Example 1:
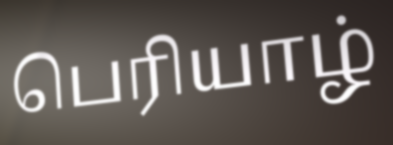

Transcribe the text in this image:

பெரியாழ்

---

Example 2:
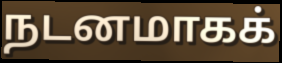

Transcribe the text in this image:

நடனமாகக்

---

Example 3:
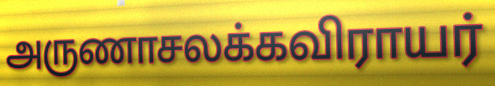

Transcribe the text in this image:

அருணாசலக்கவிராயர்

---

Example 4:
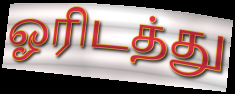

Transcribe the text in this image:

ஓரிடத்து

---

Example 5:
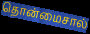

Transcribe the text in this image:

தொன்மைசால்